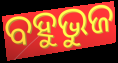
ବହୁଭୁଜ